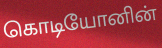
கொடியோனின்